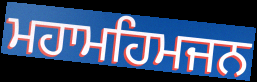
ਮਹਾਮਹਿਮਜਨ